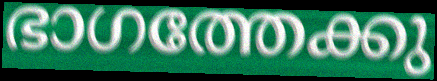
ഭാഗത്തേക്കു